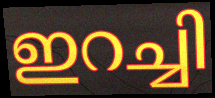
ഇറച്ചി